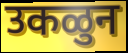
उकळुन